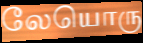
லேயொரு